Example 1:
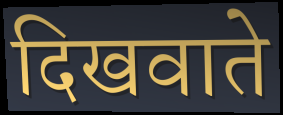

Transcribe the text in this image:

दिखवाते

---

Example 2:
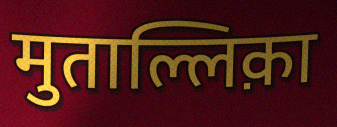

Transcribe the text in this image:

मुताल्लिक़ा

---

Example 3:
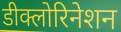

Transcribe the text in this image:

डीक्लोरिनेशन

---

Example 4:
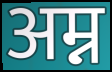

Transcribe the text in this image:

अम्न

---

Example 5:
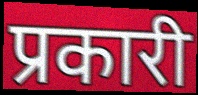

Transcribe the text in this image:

प्रकारी